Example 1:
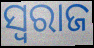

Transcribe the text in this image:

ସ୍ଵରାଜ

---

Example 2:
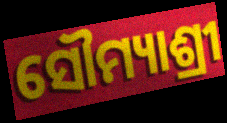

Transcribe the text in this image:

ସୌମ୍ୟାଶ୍ରୀ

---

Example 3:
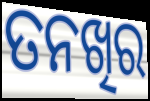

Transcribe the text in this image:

ତନଖିର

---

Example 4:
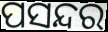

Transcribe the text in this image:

ପସନ୍ଦର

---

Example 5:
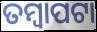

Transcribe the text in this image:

ତମ୍ବାପଟା